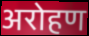
अरोहण